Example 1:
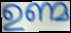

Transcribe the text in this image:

ഉണ്മ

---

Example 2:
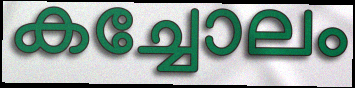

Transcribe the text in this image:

കച്ചോലം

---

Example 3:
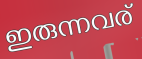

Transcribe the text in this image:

ഇരുന്നവര്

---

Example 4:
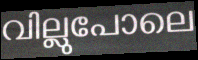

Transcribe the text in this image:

വില്ലുപോലെ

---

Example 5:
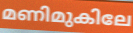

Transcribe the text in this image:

മണിമുകിലേ